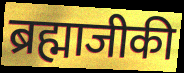
ब्रह्माजीकी